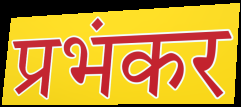
प्रभंकर